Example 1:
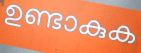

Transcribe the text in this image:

ഉണ്ടാകുക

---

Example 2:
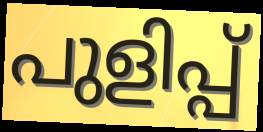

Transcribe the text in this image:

പുളിപ്പ്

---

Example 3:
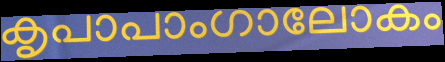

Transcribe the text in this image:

കൃപാപാംഗാലോകം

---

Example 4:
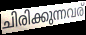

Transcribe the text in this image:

ചിരിക്കുന്നവര്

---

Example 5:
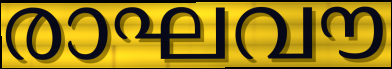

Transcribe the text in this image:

രാഘവൗ